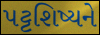
પટ્ટશિષ્યને